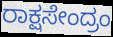
ರಾಕ್ಷಸೇಂದ್ರಂ